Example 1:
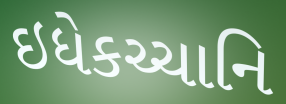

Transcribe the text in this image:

ઇધેકચ્ચાનિ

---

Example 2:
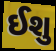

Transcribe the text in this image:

ઈશુ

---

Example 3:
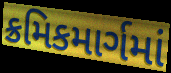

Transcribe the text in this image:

ક્રમિકમાર્ગમાં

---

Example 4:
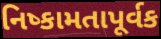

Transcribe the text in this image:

નિષ્કામતાપૂર્વક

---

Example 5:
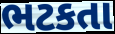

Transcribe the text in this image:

ભટકતા